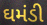
ઘમંડી